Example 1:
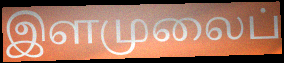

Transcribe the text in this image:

இளமுலைப்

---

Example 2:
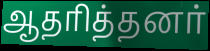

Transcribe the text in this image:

ஆதரித்தனர்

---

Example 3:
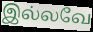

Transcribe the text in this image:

இல்லவே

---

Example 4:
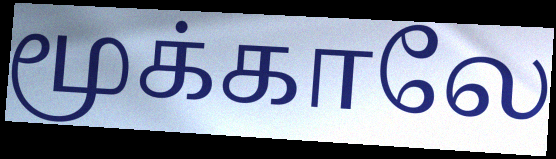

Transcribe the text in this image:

மூக்காலே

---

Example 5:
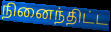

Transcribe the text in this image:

நினைந்திட்ட